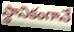
స్థానికంగానే